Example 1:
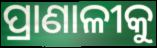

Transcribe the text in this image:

ପ୍ରାଣାଳୀକୁ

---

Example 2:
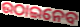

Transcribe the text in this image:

ଉଠାଇନେବ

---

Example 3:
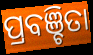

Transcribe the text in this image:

ପ୍ରବଞ୍ଚିତା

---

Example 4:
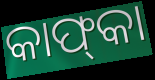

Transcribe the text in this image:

କାଫ୍‌କା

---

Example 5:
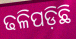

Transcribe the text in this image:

ଢଳିପଡ଼ିଛି